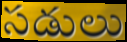
సడులు